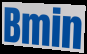
Bmin